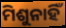
ମିଶୁନାହିଁ